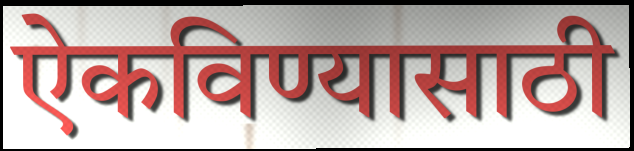
ऐकविण्यासाठी